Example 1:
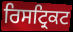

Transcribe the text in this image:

ਰਿਸਟ੍ਰਿਕਟ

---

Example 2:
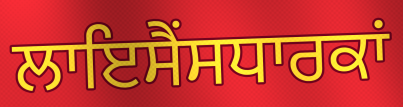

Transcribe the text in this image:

ਲਾਇਸੈਂਸਧਾਰਕਾਂ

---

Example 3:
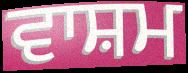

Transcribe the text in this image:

ਵਾਸ਼ਮ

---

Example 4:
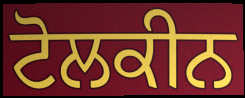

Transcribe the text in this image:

ਟੋਲਕੀਨ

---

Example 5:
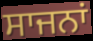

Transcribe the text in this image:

ਸਾਜਨਾਂ